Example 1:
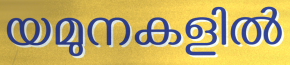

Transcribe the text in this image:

യമുനകളിൽ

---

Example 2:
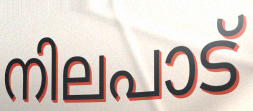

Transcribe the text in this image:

നിലപാട്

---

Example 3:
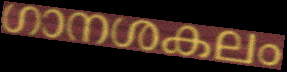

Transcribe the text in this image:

ഗാനശകലം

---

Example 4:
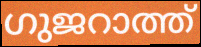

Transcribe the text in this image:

ഗുജറാത്ത്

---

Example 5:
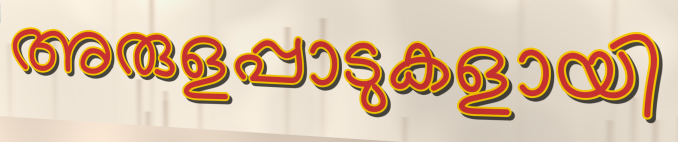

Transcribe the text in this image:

അരുളപ്പാടുകളായി